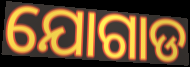
ଯୋଗାଡ